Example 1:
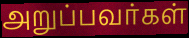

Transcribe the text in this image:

அறுப்பவர்கள்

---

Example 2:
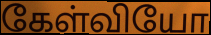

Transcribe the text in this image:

கேள்வியோ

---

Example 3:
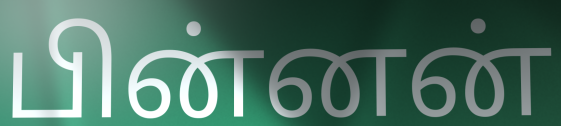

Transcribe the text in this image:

பின்னன்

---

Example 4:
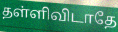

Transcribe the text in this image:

தள்ளிவிடாதே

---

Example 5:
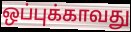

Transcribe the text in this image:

ஒப்புக்காவது